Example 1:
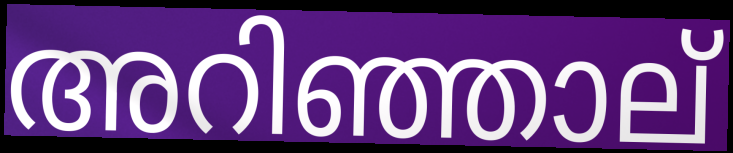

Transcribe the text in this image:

അറിഞ്ഞാല്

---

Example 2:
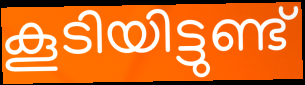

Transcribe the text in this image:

കൂടിയിട്ടുണ്ട്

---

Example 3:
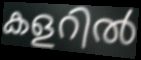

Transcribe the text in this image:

കളറിൽ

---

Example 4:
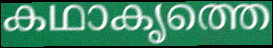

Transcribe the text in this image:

കഥാകൃത്തെ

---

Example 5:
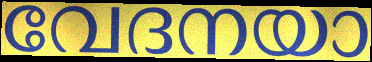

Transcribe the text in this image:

വേദനയാ